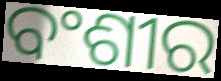
ବଂଶୀର